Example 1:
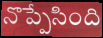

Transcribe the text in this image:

నొప్పేసింది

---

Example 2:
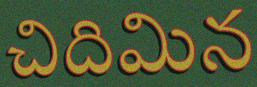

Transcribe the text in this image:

చిదిమిన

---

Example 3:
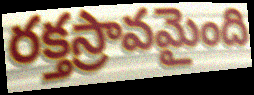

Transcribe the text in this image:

రక్తస్రావమైంది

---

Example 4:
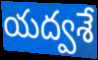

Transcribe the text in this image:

యద్వశే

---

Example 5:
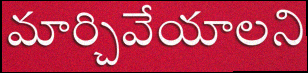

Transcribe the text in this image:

మార్చివేయాలని